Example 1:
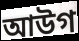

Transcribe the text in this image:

আউগ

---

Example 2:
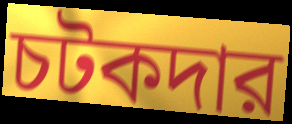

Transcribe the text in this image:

চটকদার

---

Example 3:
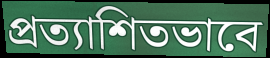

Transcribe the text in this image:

প্রত্যাশিতভাবে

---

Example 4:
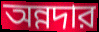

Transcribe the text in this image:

অন্নদার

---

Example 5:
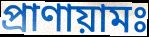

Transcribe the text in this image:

প্রাণায়ামঃ